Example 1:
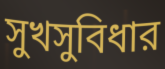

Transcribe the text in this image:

সুখসুবিধার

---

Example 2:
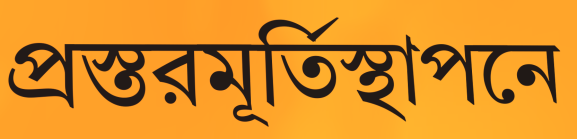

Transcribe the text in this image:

প্রস্তরমূর্তিস্থাপনে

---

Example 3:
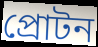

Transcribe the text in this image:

প্রোটন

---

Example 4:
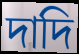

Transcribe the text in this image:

দাদি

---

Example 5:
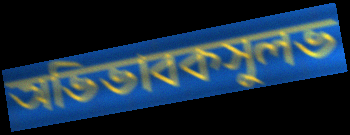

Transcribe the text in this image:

অভিভাবকসুলভ